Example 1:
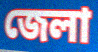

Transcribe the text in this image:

জেলা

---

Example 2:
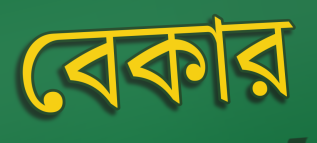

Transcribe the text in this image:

বেকার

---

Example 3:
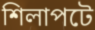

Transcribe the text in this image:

শিলাপটে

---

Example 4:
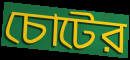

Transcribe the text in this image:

চোটের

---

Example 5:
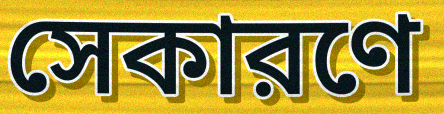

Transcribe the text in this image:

সেকারণে